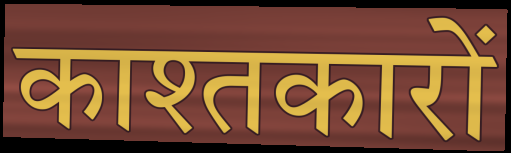
काश्तकारों